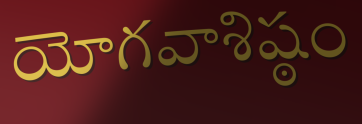
యోగవాశిష్ఠం